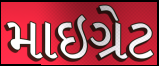
માઇગ્રેટ